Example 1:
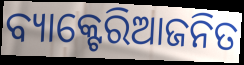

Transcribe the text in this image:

ବ୍ୟାକ୍ଟେରିଆଜନିତ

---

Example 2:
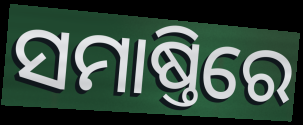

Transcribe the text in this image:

ସମାଷ୍ତିରେ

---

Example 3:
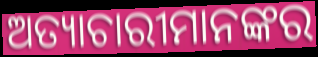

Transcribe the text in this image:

ଅତ୍ୟାଚାରୀମାନଙ୍କର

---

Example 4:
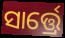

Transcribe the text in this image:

ସାର୍ତ୍ତ୍ରେ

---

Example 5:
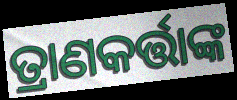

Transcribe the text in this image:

ତ୍ରାଣକର୍ତ୍ତାଙ୍କ